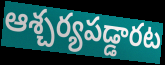
ఆశ్చర్యపడ్డారట